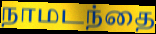
நாமடந்தை